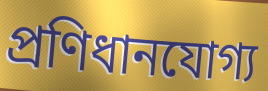
প্ৰণিধানযোগ্য